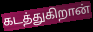
கடத்துகிறான்